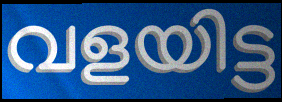
വളയിട്ട